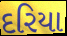
દરિયા